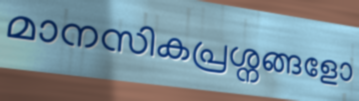
മാനസികപ്രശ്നങ്ങളോ